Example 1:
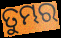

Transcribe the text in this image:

ତୁମ୍ଭର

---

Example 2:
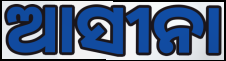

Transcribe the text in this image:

ଆସୀନା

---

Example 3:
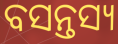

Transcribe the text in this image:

ବସନ୍ତସ୍ୟ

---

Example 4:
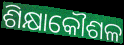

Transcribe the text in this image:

ଶିକ୍ଷାକୌଶଳ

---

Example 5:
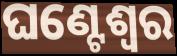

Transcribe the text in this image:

ଘଣ୍ଟେଶ୍ୱର